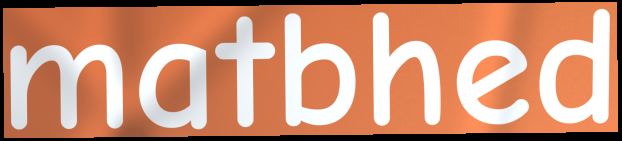
matbhed